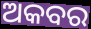
ଅକବର